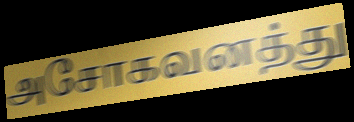
அசோகவனத்து